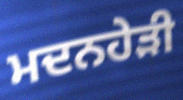
ਮਦਨਹੇੜੀ